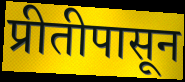
प्रीतीपासून